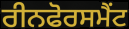
ਰੀਨਫੋਰਸਮੈਂਟ